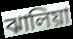
ঝালিয়া